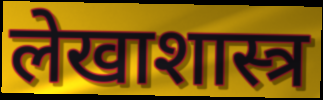
लेखाशास्त्र